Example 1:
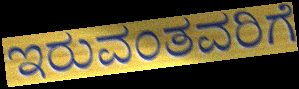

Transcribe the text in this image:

ಇರುವಂತವರಿಗೆ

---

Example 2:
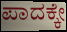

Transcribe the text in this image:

ಪಾದಕ್ಕೇ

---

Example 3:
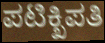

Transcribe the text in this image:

ಪಟಿಕ್ಖಿಪತಿ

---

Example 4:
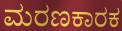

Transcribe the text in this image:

ಮರಣಕಾರಕ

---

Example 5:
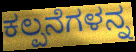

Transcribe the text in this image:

ಕಲ್ಪನೆಗಳನ್ನ